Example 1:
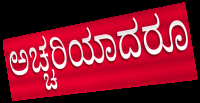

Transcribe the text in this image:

ಅಚ್ಚರಿಯಾದರೂ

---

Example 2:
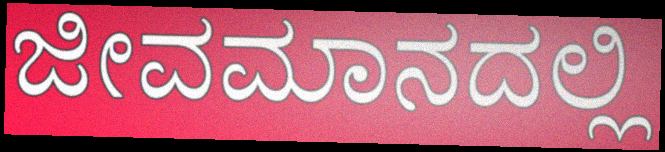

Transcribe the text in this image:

ಜೀವಮಾನದಲ್ಲಿ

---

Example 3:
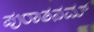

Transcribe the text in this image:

ಪುರಾತನಮ್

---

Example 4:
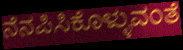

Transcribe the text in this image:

ನೆನಪಿಸಿಕೊಳ್ಳುವಂತೆ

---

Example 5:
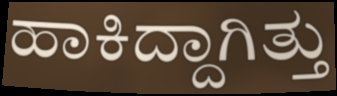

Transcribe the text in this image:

ಹಾಕಿದ್ದಾಗಿತ್ತು